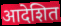
आदेशित